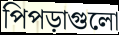
পিপড়াগুলো